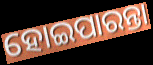
ହୋଇପାରନ୍ତା